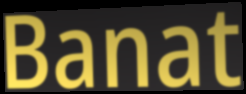
Banat